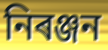
নিৰঞ্জন